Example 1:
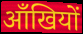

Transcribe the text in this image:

आँखियों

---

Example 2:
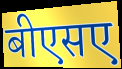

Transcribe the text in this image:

बीएसए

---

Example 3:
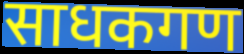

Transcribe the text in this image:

साधकगण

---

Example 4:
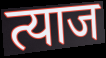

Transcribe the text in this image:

त्याज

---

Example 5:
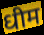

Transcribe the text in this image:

धीम